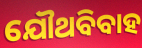
ଯୌଥବିବାହ